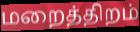
மறைத்திறம்